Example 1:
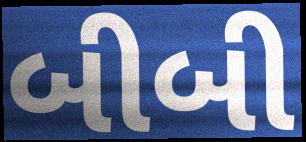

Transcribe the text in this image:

બીબી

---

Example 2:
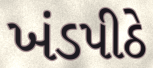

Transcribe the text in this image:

ખંડપીઠે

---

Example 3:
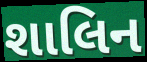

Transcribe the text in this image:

શાલિન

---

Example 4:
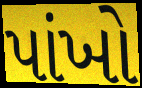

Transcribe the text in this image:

પાંખો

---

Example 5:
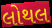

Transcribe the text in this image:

લોથલ